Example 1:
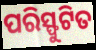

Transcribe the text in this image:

ପରିସ୍ଫୁଟିତ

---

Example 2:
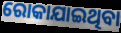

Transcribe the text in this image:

ରୋକାଯାଇଥିବା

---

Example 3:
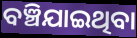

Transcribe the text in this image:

ବଞ୍ଚିଯାଇଥିବା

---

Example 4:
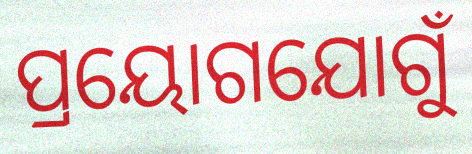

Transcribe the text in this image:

ପ୍ରୟୋଗଯୋଗୁଁ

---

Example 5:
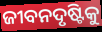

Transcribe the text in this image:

ଜୀବନଦୃଷ୍ଟିକୁ